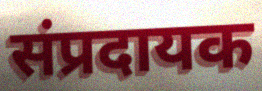
संप्रदायक